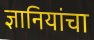
ज्ञानियांचा